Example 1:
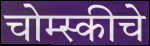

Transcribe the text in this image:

चोम्स्कीचे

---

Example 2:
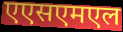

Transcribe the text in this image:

एएसएमएल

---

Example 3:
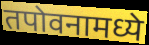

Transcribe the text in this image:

तपोवनामध्ये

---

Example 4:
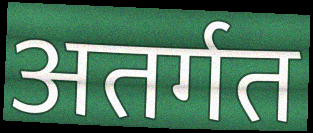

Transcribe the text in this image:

अतर्गत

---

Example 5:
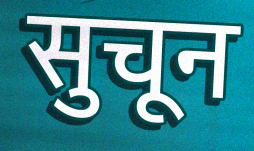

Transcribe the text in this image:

सुचून